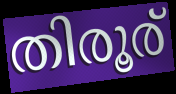
തിരൂര്